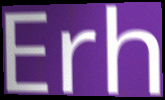
Erh